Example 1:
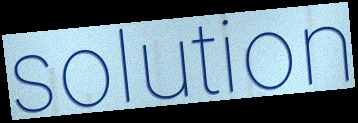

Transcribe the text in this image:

solution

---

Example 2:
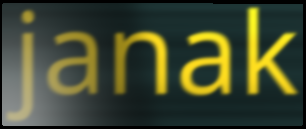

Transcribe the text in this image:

janak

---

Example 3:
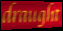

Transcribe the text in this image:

draught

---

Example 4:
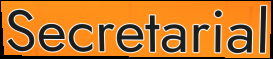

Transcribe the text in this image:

Secretarial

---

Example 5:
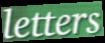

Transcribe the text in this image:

letters